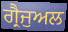
ਗ੍ਰੈਜੁਅਲ